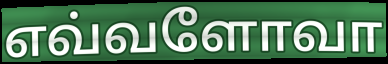
எவ்வளோவா